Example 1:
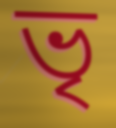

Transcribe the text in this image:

ভৃ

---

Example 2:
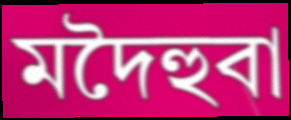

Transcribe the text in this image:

মদৈহুবা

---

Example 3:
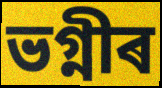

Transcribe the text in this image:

ভগ্নীৰ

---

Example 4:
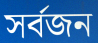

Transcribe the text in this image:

সৰ্বজন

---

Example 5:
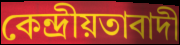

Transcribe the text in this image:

কেন্দ্ৰীয়তাবাদী